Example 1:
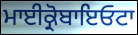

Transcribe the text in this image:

ਮਾਈਕ੍ਰੋਬਾਇਓਟਾ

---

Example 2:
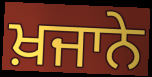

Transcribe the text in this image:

ਖ਼ਜਾਨੇ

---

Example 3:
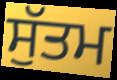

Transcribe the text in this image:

ਸੁੱਤਮ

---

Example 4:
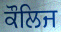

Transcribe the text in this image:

ਕੌਲਿਜ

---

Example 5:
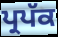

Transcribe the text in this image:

ਪ੍ਰਪੱਕ